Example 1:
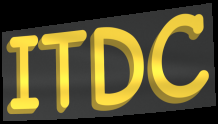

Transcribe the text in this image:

ITDC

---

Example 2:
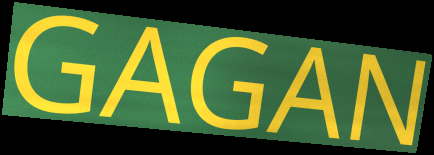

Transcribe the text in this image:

GAGAN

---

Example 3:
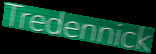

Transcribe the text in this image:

Tredennick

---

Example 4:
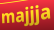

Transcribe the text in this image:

majjja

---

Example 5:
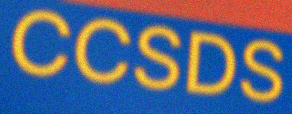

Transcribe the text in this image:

CCSDS